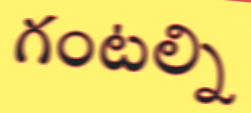
గంటల్ని